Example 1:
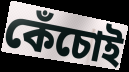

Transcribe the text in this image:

কেঁচোই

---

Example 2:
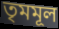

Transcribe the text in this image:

তৃমমূল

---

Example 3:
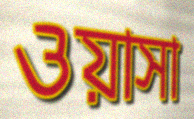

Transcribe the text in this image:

ওয়াসা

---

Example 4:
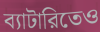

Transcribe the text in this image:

ব্যাটারিতেও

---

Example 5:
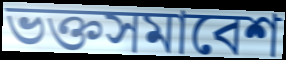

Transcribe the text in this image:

ভক্তসমাবেশ